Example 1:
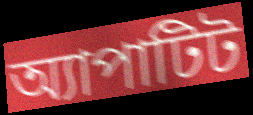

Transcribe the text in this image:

অ্যাপাটিট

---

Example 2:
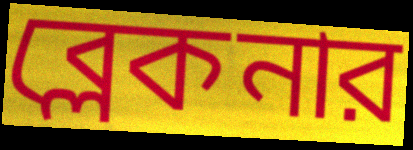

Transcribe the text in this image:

ব্লেকনার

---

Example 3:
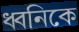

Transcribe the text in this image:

ধ্বনিকে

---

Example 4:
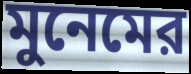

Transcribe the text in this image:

মুনেমের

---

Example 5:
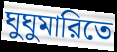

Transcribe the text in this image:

ঘুঘুমারিতে